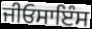
ਜੀਓਸਾਇੰਸ